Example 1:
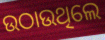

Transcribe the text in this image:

ଉଠାଉଥିଲେ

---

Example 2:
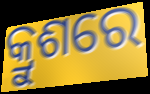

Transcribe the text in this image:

କ୍ରୁଶରେ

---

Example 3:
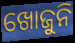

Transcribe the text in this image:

ଖୋଜୁନି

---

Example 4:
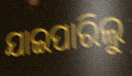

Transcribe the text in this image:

ଯାଇପାରିଲୁ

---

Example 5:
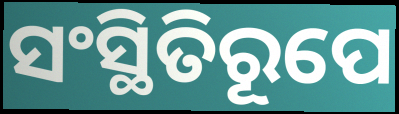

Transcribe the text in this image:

ସଂସ୍ଥିତିରୂପେ